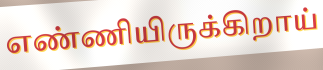
எண்ணியிருக்கிறாய்